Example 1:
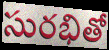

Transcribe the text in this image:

సురభితో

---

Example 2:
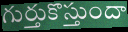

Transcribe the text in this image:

గుర్తుకొస్తుందా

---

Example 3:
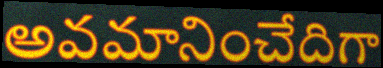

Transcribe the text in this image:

అవమానించేదిగా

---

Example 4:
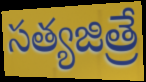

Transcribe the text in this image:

సత్యజిత్రే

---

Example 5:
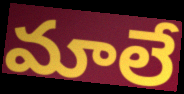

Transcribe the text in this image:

మాలే